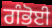
ਗੰਭੋਈ